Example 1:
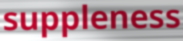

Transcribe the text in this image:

suppleness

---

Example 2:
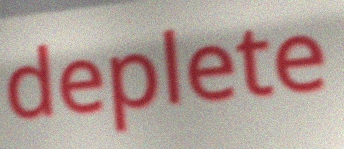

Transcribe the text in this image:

deplete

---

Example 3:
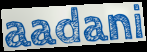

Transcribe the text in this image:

aadani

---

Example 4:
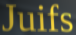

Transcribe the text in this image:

Juifs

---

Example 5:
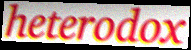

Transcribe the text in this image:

heterodox